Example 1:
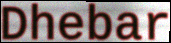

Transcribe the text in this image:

Dhebar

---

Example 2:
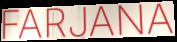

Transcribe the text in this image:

FARJANA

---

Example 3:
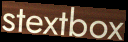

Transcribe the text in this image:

stextbox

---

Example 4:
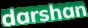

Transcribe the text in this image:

darshan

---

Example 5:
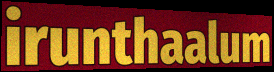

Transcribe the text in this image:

irunthaalum